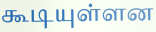
கூடியுள்ளன